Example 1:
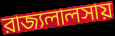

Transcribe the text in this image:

রাজ্যলালসায়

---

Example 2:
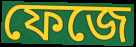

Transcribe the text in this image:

ফেজে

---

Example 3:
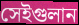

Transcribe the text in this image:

সেইগুলান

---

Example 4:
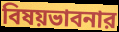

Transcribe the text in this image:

বিষয়ভাবনার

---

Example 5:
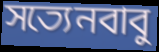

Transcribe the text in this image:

সত্যেনবাবু